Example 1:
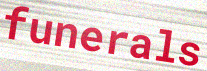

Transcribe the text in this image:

funerals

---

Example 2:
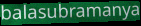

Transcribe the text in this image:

balasubramanya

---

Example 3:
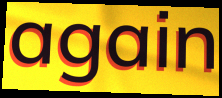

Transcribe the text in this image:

again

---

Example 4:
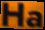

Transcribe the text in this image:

Ha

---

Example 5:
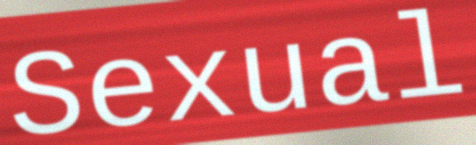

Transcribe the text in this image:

Sexual